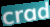
crad